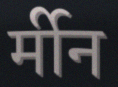
र्मीन